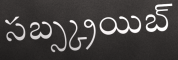
సబ్స్క్రయిబ్